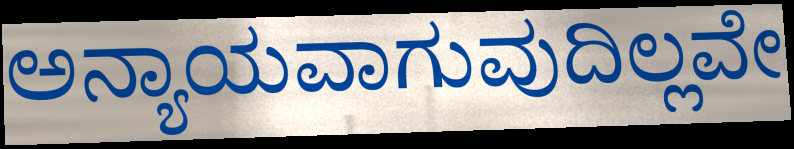
ಅನ್ಯಾಯವಾಗುವುದಿಲ್ಲವೇ